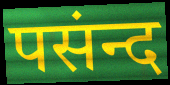
पसंन्द